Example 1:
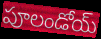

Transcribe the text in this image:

పూలండోయ్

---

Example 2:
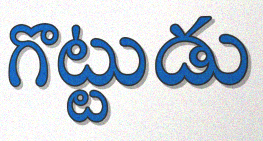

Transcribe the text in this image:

గొట్టుడు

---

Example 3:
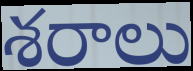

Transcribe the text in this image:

శరాలు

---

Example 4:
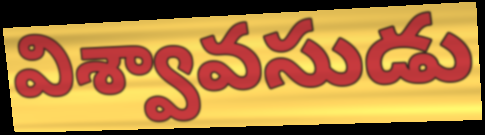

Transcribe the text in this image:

విశ్వావసుడు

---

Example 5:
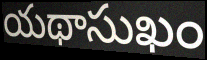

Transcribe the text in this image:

యథాసుఖం